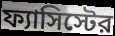
ফ্যাসিস্টের